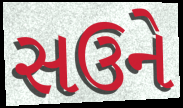
સઉને